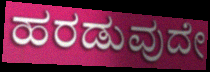
ಹರಡುವುದೇ